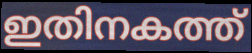
ഇതിനകത്ത്